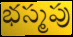
భస్మపు